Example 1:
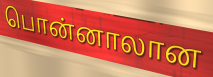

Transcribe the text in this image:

பொன்னாலான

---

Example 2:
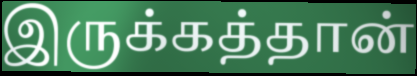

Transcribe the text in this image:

இருக்கத்தான்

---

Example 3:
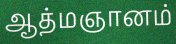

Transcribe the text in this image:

ஆத்மஞானம்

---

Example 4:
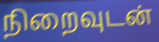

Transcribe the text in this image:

நிறைவுடன்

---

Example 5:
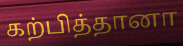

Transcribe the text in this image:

கற்பித்தானா